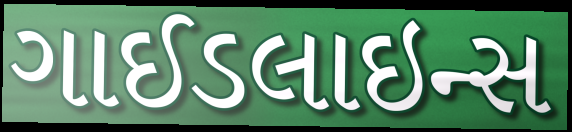
ગાઈડલાઇન્સ